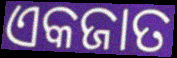
ଏକଜାତ